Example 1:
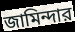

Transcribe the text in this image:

জামিন্দার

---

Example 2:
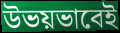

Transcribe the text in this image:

উভয়ভাবেই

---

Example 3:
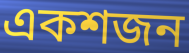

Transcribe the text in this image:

একশজন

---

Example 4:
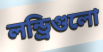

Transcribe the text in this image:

লন্ড্রিগুলো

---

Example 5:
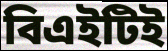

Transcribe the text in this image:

বিএইটিই